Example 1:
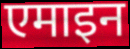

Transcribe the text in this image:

एमाइन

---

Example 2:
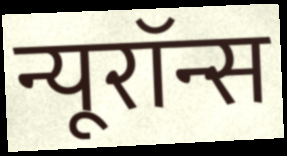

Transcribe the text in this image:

न्यूरॉन्स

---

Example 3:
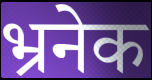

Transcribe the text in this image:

भ्रनेक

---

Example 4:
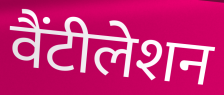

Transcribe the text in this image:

वैंटीलेशन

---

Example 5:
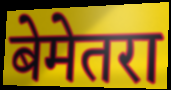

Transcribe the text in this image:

बेमेतरा